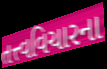
તત્ત્વવિચારના